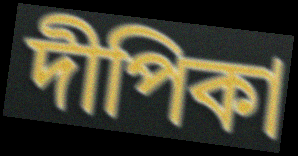
দীপিকা